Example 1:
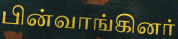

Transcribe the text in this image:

பின்வாங்கினர்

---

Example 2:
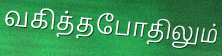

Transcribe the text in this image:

வகித்தபோதிலும்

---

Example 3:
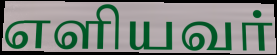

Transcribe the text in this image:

எளியவர்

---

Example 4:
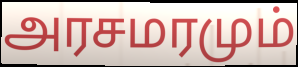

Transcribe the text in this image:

அரசமரமும்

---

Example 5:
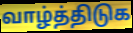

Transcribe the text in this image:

வாழ்த்திடுக